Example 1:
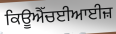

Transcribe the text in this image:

ਕਿਊਐੱਚਈਆਈਜ਼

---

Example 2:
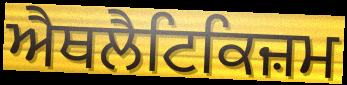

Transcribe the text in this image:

ਐਥਲੈਟਿਕਿਜ਼ਮ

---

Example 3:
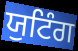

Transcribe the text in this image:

ਯੁਟਿੰਗ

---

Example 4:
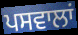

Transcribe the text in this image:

ਪਸਵਾਲਾਂ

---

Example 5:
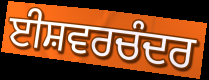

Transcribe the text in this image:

ਈਸ਼ਵਰਚੰਦਰ